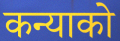
कन्याको